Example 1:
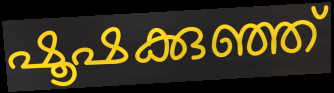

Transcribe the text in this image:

ഷൂഷക്കുഞ്ഞ്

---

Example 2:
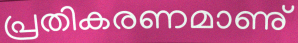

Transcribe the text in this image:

പ്രതികരണമാണു്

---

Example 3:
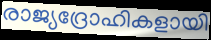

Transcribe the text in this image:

രാജ്യദ്രോഹികളായി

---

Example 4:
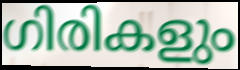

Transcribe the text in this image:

ഗിരികളും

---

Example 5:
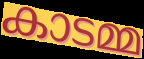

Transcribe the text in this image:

കാടമ്മ